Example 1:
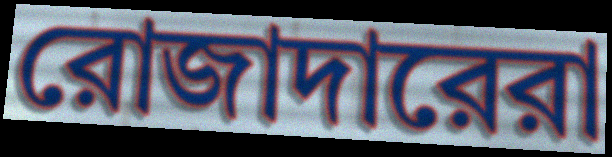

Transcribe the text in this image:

রোজাদারেরা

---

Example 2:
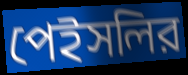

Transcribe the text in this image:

পেইসলির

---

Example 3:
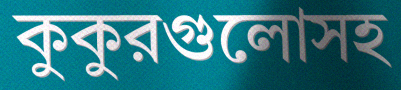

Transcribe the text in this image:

কুকুরগুলোসহ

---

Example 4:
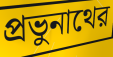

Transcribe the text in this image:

প্রভুনাথের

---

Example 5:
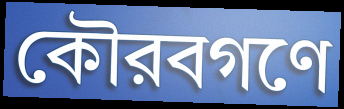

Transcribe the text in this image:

কৌরবগণে